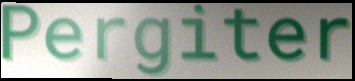
Pergiter